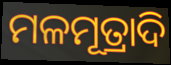
ମଳମୂତ୍ରାଦି